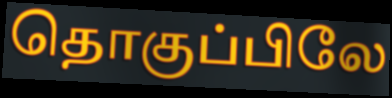
தொகுப்பிலே